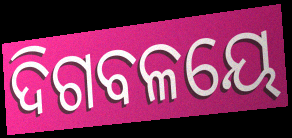
ଦିଗବଳୟେ